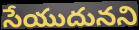
సేయుదునని